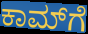
ಕಾಮ್‌ಗೆ